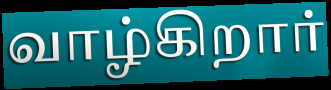
வாழ்கிறார்